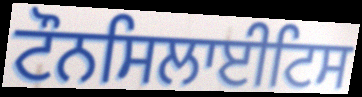
ਟੌਨਸਿਲਾਈਟਿਸ